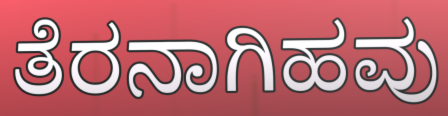
ತೆರನಾಗಿಹವು